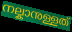
നല്കാനുള്ളത്